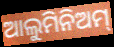
ଆଲୁମିନିଅମ୍